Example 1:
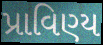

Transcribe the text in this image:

પ્રાવિણ્ય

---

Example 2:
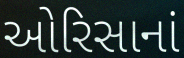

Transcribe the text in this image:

ઓરિસાનાં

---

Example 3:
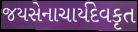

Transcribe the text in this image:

જયસેનાચાર્યદેવકૃત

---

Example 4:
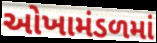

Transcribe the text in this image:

ઓખામંડળમાં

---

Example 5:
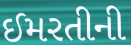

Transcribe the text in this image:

ઈમરતીની